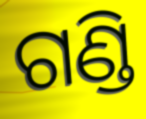
ଗଣ୍ଡି